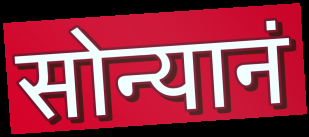
सोन्यानं